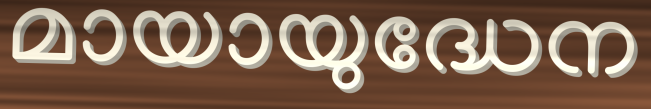
മായായുദ്ധേന